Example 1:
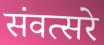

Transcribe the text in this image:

संवत्सरे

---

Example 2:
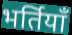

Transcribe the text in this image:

भर्तियाँ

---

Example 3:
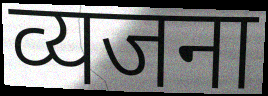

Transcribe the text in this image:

व्यजना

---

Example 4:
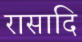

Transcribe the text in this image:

रासादि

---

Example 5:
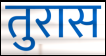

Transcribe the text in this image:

तुरास